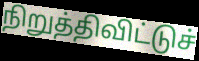
நிறுத்திவிட்டுச்